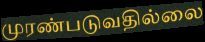
முரண்படுவதில்லை